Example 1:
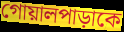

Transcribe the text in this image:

গোয়ালপাড়াকে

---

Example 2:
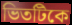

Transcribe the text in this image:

ভিতটিকে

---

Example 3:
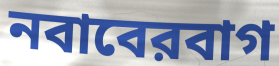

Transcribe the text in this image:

নবাবেরবাগ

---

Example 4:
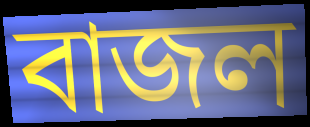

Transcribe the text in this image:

বাজল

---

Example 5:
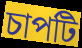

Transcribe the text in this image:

চাপটি